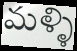
మళ్ళి